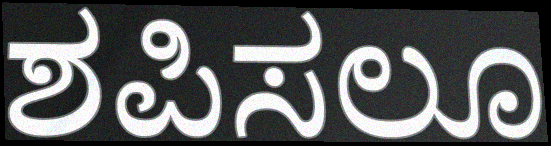
ಶಪಿಸಲೂ